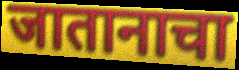
जातानाचा